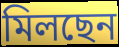
মিলছেন